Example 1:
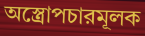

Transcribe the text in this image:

অস্ত্রোপচারমূলক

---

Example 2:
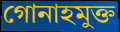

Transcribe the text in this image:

গোনাহমুক্ত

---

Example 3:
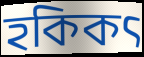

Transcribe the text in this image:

হকিকৎ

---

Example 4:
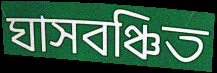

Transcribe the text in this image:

ঘাসবঞ্চিত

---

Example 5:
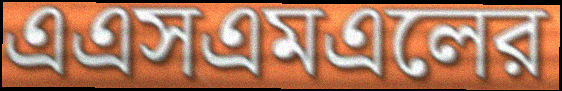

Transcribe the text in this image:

এএসএমএলের